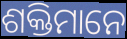
ଶକ୍ତିମାନେ